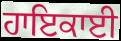
ਹਾਇਕਾਈ